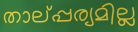
താല്പ്പര്യമില്ല